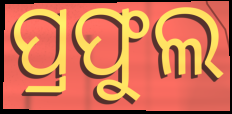
ପ୍ରଫୁଲ